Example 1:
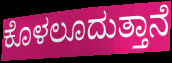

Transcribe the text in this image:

ಕೊಳಲೂದುತ್ತಾನೆ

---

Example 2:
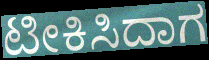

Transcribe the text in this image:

ಟೀಕಿಸಿದಾಗ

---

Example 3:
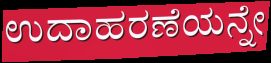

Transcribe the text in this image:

ಉದಾಹರಣೆಯನ್ನೇ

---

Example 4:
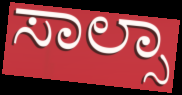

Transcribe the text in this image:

ಸಾಲ್ಸಾ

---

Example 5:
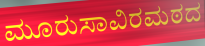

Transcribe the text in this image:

ಮೂರುಸಾವಿರಮಠದ